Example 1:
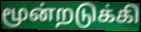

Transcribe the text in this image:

மூன்றடுக்கி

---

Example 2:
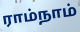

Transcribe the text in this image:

ராம்நாம்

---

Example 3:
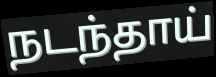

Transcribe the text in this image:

நடந்தாய்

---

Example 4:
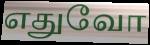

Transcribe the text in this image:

எதுவோ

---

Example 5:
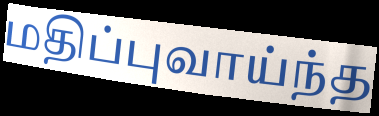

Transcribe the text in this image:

மதிப்புவாய்ந்த